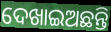
ଦେଖାଇଅଛନ୍ତି